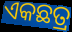
ଏକଛତ୍ର